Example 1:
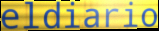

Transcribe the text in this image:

eldiario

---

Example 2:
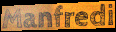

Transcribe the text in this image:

Manfredi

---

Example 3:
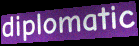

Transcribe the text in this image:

diplomatic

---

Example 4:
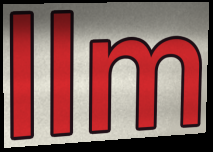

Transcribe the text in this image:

llm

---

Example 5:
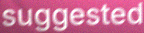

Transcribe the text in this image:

suggested